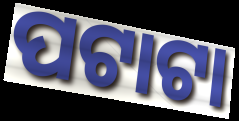
ପଟାଟା